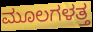
ಮೂಲಗಳತ್ತ